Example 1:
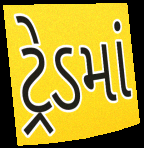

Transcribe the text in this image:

ટ્રેડમાં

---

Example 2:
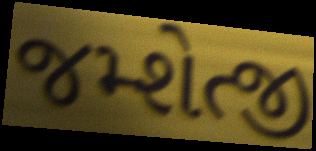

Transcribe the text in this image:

જમ્શેત્જી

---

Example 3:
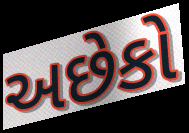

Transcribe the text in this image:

અછેકો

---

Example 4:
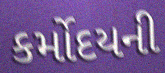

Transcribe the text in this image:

કર્મોદયની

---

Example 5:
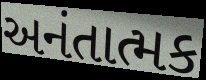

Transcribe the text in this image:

અનંતાત્મક